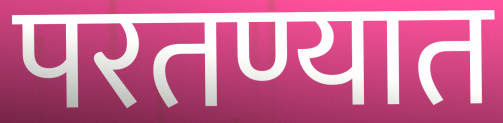
परतण्यात